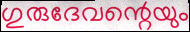
ഗുരുദേവന്റെയും